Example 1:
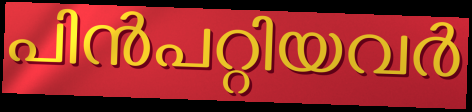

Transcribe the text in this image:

പിൻപറ്റിയവർ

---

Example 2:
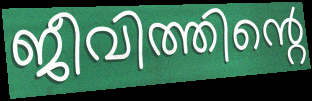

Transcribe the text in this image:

ജീവിത്തിന്റെ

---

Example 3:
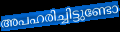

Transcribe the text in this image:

അപഹരിച്ചിട്ടുണ്ടോ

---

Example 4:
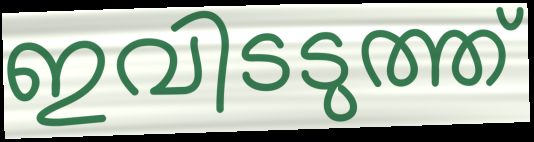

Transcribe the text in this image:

ഇവിടടുത്ത്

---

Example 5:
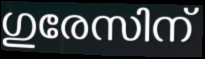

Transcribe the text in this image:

ഗുരേസിന്